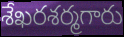
శేఖరశర్మగారు